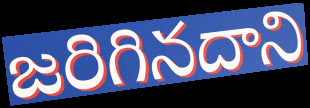
జరిగినదాని